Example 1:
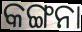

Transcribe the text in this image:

କଙ୍ଗନା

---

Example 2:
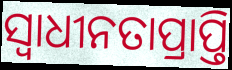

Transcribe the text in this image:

ସ୍ଵାଧୀନତାପ୍ରାପ୍ତି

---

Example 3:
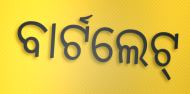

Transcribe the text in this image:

ବାର୍ଟଲେଟ୍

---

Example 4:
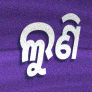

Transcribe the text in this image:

ଲୁଣି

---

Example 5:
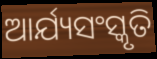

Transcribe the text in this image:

ଆର୍ଯ୍ୟସଂସ୍କୃତି